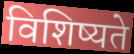
विशिष्यते